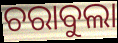
ଚରାବୁଲା